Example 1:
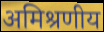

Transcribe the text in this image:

अमिश्रणीय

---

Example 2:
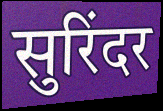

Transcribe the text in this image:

सुरिंदर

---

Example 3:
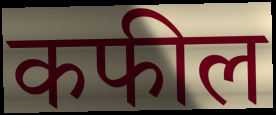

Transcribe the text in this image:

कफील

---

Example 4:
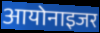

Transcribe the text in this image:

आयोनाइजर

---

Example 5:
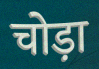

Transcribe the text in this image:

चोड़ा